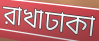
রাখাঢাকা